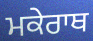
ਮਕੇਰਾਥ